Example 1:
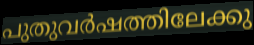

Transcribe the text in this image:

പുതുവർഷത്തിലേക്കു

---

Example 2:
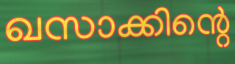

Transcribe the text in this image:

ഖസാക്കിന്റെ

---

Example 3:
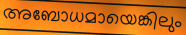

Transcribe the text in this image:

അബോധമായെങ്കിലും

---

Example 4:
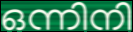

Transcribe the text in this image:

ഒന്നിനി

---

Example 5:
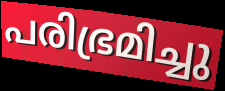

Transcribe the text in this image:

പരിഭ്രമിച്ചു